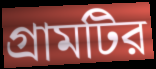
গ্রামটির